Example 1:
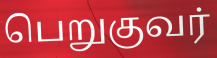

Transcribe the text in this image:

பெறுகுவர்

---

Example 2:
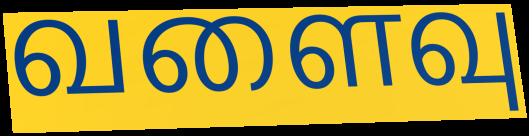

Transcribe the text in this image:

வளைவு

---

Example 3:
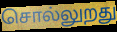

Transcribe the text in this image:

சொல்லுறது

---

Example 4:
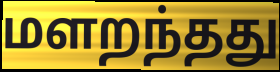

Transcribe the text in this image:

மளறந்தது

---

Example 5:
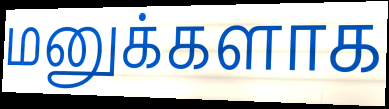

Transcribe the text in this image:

மனுக்களாக